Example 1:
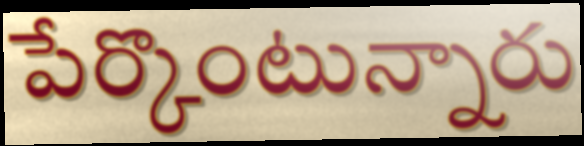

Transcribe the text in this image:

పేర్కొంటున్నారు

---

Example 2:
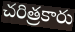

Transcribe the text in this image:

చరిత్రకారు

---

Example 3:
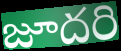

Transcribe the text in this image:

జూదరి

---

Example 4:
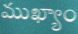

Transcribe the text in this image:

ముఖ్యాం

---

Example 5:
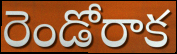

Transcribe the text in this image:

రెండోరాక